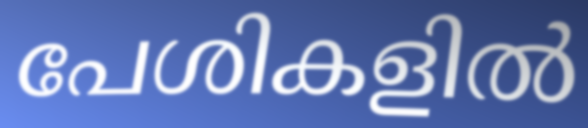
പേശികളിൽ